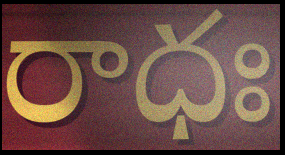
రాధః